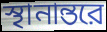
স্থানান্তরে